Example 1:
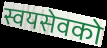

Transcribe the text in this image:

स्वयसेवको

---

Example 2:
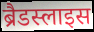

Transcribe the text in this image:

ब्रैडस्लाइस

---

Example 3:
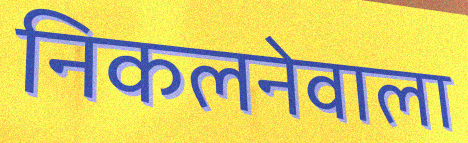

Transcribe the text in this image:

निकलनेवाला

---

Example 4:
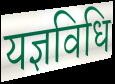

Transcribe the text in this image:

यज्ञविधि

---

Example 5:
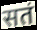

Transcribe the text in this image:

सतं